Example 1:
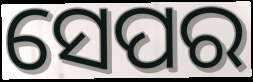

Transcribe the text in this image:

ସେପର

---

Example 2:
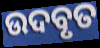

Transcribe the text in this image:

ଉଦବୃତ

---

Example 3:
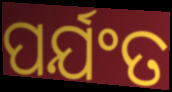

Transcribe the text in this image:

ପର୍ଯଂତ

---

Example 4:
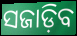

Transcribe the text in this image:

ସଜାଡ଼ିବ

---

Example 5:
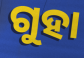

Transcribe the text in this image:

ଗୁହା